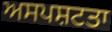
ਅਸਪਸ਼ਟਤਾ